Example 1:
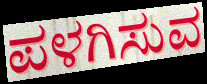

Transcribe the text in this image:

ಪಳಗಿಸುವ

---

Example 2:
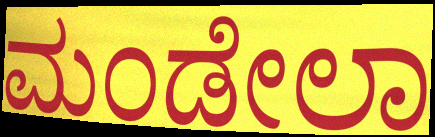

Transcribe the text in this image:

ಮಂಡೇಲಾ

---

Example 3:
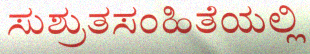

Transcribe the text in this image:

ಸುಶ್ರುತಸಂಹಿತೆಯಲ್ಲಿ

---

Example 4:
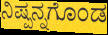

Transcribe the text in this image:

ನಿಷ್ಪನ್ನಗೊಂಡ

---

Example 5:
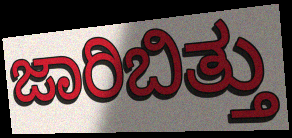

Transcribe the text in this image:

ಜಾರಿಬಿತ್ತು